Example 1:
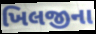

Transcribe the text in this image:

ખિલજીના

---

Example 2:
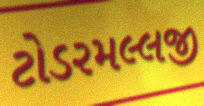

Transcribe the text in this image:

ટોડરમલ્લજી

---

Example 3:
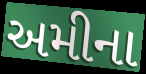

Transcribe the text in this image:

અમીના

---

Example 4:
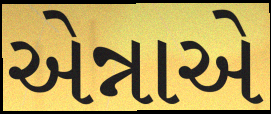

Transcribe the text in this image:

એન્નાએ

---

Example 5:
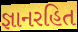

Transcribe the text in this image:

જ્ઞાનરહિત